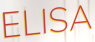
ELISA